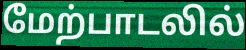
மேற்பாடலில்